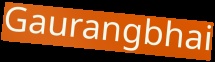
Gaurangbhai